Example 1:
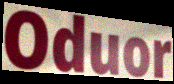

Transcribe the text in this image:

Oduor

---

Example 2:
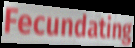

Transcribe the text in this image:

Fecundating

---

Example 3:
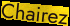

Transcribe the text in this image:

Chairez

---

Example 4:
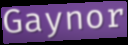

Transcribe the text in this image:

Gaynor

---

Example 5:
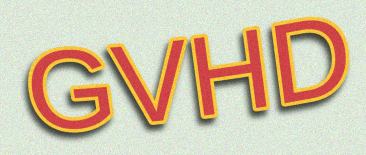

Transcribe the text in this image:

GVHD